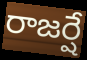
రాజర్షే